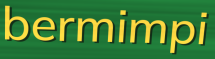
bermimpi